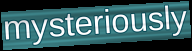
mysteriously